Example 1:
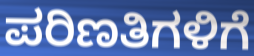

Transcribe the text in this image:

ಪರಿಣತಿಗಳಿಗೆ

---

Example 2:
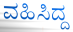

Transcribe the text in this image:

ವಹಿಸಿದ್ದ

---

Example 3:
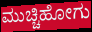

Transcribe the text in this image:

ಮುಚ್ಚಿಹೋಗು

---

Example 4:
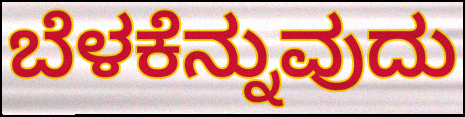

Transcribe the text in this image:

ಬೆಳಕೆನ್ನುವುದು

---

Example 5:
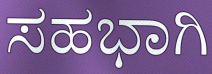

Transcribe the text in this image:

ಸಹಭಾಗಿ